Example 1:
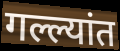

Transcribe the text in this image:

गल्ल्यांत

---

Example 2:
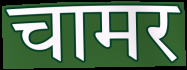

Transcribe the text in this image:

चामर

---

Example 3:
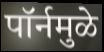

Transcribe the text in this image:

पॉर्नमुळे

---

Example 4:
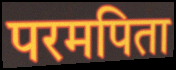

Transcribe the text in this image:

परमपिता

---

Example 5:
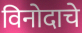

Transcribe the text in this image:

विनोदाचे